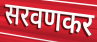
सरवणकर